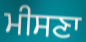
ਮੀਸਣਾ